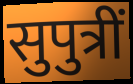
सुपुत्रीं